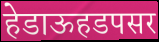
हेडाऊहडपसर